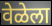
वेळेला